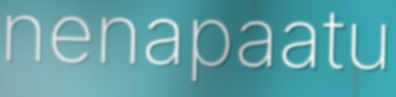
nenapaatu